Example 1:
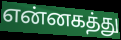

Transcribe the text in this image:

என்னகத்து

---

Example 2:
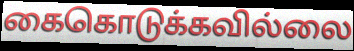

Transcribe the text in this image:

கைகொடுக்கவில்லை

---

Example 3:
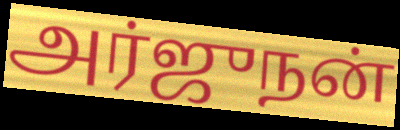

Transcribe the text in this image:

அர்ஜுநன்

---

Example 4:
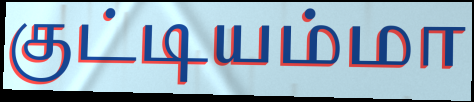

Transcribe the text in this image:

குட்டியம்மா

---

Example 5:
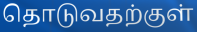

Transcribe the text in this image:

தொடுவதற்குள்